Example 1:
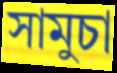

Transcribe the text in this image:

সামুচা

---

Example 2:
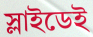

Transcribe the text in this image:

স্লাইডেই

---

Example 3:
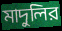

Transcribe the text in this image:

মাদুলির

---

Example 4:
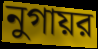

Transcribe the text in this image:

নুগায়র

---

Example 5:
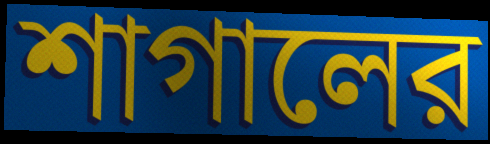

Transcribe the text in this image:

শাগালের